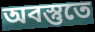
অবস্তুতে